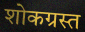
शोकग्रस्त